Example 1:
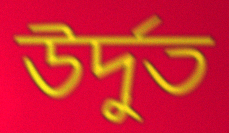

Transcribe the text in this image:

উৰ্দুত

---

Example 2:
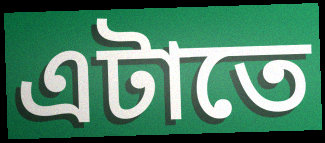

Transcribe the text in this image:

এটাতে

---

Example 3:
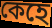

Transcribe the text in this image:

কেহে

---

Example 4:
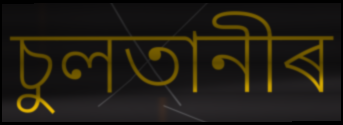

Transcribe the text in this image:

চুলতানীৰ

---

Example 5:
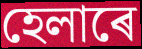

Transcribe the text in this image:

হেলাৰে